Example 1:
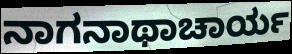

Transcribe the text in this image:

ನಾಗನಾಥಾಚಾರ್ಯ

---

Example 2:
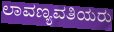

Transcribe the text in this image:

ಲಾವಣ್ಯವತಿಯರು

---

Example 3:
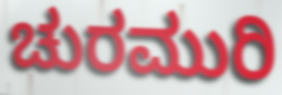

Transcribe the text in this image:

ಚುರಮುರಿ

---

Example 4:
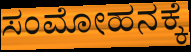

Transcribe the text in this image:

ಸಂಮೋಹನಕ್ಕೆ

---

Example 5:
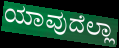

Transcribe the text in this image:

ಯಾವುದೆಲ್ಲಾ